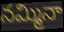
నమ్మినా